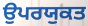
ਉਪਰਯੁਕਤ